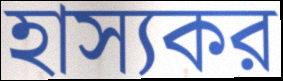
হাস্যকর